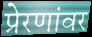
प्रेरणांवर